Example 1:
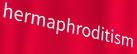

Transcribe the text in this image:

hermaphroditism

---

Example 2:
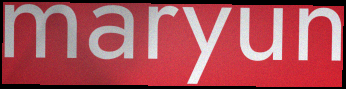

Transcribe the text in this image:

maryun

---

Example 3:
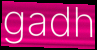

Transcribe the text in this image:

gadh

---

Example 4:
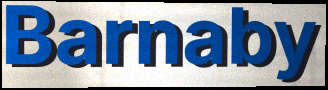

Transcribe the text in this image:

Barnaby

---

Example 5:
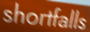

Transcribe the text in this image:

shortfalls